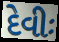
દેવીઃ